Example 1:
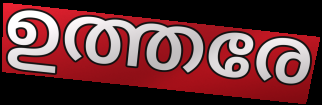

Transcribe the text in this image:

ഉത്തരേ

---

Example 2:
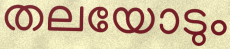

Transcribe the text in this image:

തലയോടും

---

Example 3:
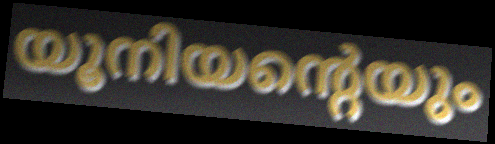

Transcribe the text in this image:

യൂനിയന്റെയും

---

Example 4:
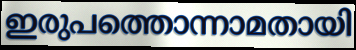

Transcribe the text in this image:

ഇരുപത്തൊന്നാമതായി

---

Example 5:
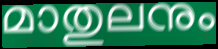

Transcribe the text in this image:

മാതുലനും